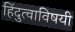
हिंदुत्वाविषयी